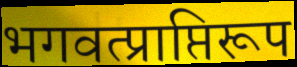
भगवत्प्राप्तिरूप